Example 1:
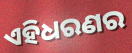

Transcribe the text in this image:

ଏହିଧରଣର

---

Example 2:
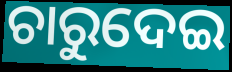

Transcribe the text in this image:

ଚାରୁଦେଇ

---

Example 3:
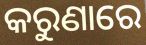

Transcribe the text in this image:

କରୁଣାରେ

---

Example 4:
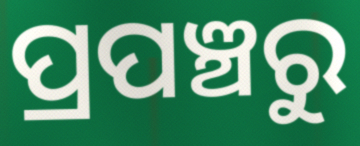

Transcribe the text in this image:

ପ୍ରପଞ୍ଚରୁ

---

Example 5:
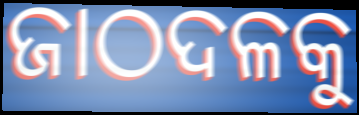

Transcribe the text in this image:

ଜାଠଦଳକୁ